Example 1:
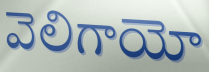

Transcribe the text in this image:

వెలిగాయో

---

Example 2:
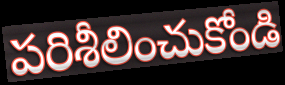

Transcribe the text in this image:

పరిశీలించుకోండి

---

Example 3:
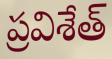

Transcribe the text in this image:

ప్రవిశేత్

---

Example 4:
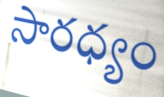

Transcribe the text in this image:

సారధ్యం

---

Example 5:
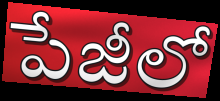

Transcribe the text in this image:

పేజీలో